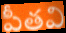
పీతవి